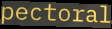
pectoral